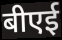
बीएई